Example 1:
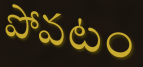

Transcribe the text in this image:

పోవటం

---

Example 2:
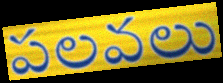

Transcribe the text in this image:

పలవలు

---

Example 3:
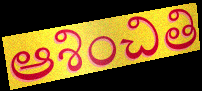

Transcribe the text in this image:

ఆశించితి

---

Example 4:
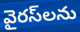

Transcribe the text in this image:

వైరస్‌లను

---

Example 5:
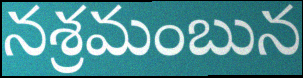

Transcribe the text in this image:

నశ్రమంబున